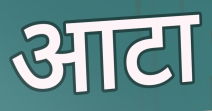
आटा